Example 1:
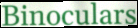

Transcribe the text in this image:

Binoculars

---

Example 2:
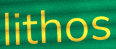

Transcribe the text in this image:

lithos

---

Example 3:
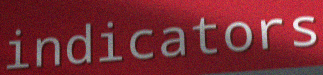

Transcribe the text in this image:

indicators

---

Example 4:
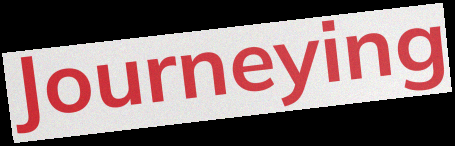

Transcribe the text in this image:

Journeying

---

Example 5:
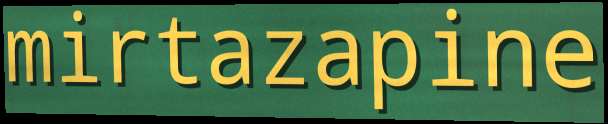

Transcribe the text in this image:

mirtazapine